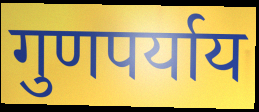
गुणपर्याय